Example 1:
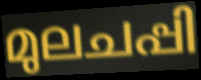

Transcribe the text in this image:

മുലചപ്പി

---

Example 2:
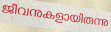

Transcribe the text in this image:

ജീവനുകളായിരുന്നു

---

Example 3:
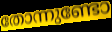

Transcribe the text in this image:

തോന്നുണ്ടോ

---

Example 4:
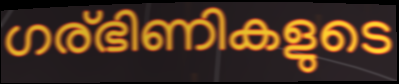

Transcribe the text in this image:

ഗര്ഭിണികളുടെ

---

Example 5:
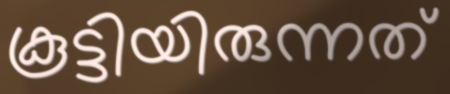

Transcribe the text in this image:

കൂട്ടിയിരുന്നത്